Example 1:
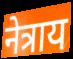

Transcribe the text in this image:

नेत्राय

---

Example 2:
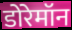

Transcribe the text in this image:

डोरेमॉन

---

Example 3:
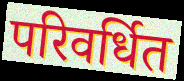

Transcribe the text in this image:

परिवर्धित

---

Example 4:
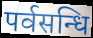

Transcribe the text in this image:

पर्वसन्धि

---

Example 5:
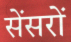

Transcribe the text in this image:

सेंसरों